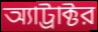
অ্যাট্রাক্টর